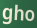
gho